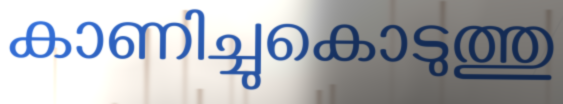
കാണിച്ചുകൊടുത്തു